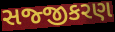
સજ્જીકરણ